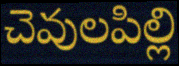
చెవులపిల్లి